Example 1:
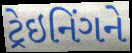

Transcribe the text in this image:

ટ્રેઇનિંગને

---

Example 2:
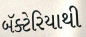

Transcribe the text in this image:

બૅક્ટેરિયાથી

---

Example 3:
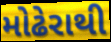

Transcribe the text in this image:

મોઢેરાથી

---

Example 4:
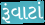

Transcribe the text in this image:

રૂંવાટાં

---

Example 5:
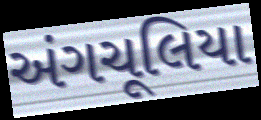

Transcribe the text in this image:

અંગચૂલિયા